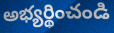
అభ్యర్థించండి